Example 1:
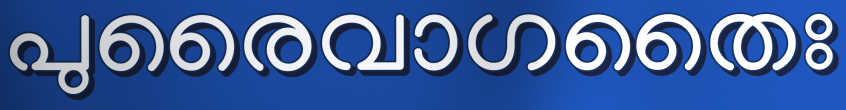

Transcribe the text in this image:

പുരൈവാഗതൈഃ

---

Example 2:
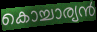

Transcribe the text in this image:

കൊച്ചാര്യൻ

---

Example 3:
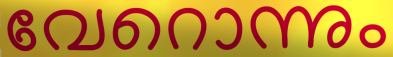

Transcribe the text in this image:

വേറൊന്നും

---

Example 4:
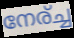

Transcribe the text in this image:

നേര്ച്ച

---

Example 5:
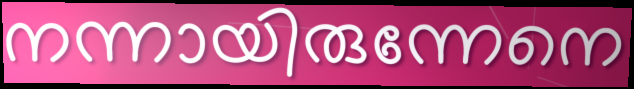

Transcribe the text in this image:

നന്നായിരുന്നേനെ